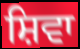
ਸ਼ਿਵਾ